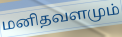
மனிதவளமும்